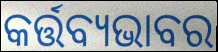
କର୍ତ୍ତବ୍ୟଭାବର